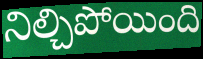
నిల్చిపోయింది